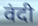
वंदी